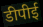
डीपीई